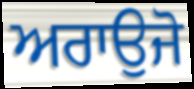
ਅਰਾਉਜੋ